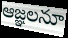
ఆజ్ఞలనూ